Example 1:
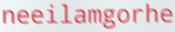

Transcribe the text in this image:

neeilamgorhe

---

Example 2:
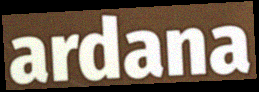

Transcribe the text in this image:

ardana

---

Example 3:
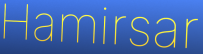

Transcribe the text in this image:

Hamirsar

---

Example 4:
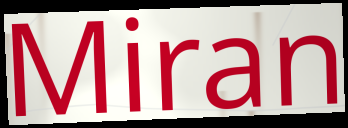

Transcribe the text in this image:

Miran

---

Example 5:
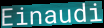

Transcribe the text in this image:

Einaudi